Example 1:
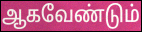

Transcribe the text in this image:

ஆகவேண்டும்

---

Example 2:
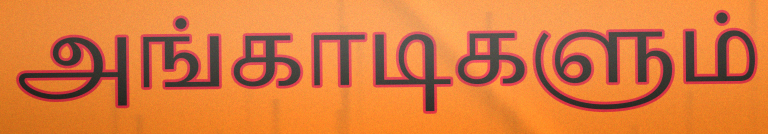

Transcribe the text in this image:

அங்காடிகளும்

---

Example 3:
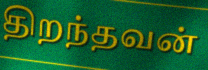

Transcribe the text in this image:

திறந்தவன்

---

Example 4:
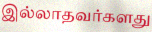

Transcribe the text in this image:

இல்லாதவர்களது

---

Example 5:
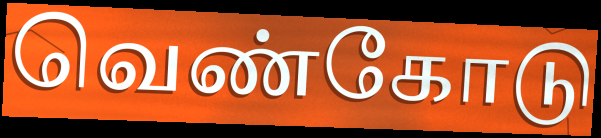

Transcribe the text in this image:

வெண்கோடு